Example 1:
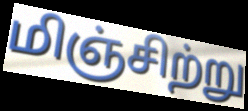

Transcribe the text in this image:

மிஞ்சிற்று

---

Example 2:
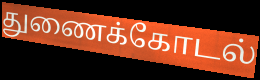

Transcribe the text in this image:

துணைக்கோடல்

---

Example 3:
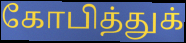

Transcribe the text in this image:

கோபித்துக்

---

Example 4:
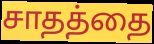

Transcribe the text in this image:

சாதத்தை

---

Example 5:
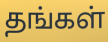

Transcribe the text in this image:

தங்கள்